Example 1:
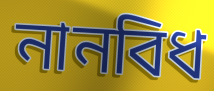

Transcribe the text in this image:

নানবিধ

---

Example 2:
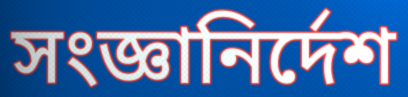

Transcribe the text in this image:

সংজ্ঞানির্দেশ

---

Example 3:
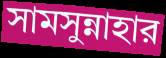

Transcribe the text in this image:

সামসুন্নাহার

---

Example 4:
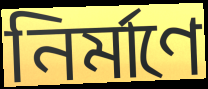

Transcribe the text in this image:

নির্মাণে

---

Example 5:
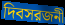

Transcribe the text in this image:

দিবসরজনী